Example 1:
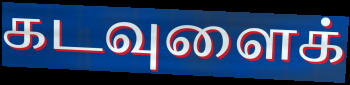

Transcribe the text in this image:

கடவுளைக்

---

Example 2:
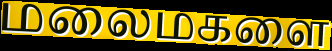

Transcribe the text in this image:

மலைமகளை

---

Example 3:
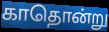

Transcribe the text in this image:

காதொன்று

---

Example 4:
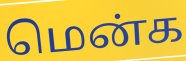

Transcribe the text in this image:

மென்க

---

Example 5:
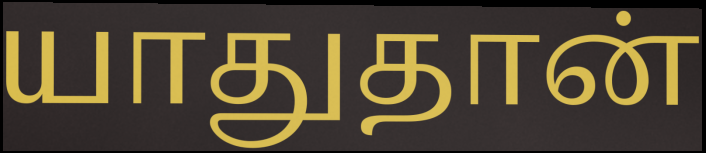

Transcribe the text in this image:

யாதுதான்